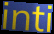
inti